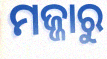
ମଜ୍ଜାରୁ